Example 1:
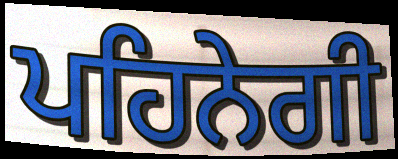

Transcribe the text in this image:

ਪਹਿਨੇਗੀ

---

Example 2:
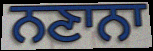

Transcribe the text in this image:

ਨਣਾਨਾ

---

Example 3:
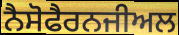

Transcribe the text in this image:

ਨੈਸੋਫੈਰਨਜੀਅਲ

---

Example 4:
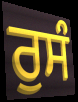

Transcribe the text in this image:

ਰੁਸੰ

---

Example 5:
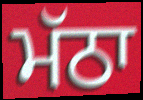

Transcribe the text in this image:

ਮੱਠਾ